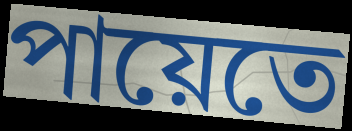
পায়েতে